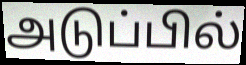
அடுப்பில்